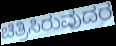
ಚಿತ್ರಿಸಿರುವುದರ